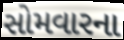
સોમવારના